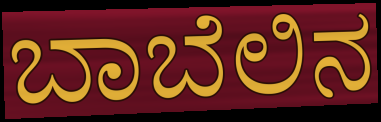
ಬಾಬೆಲಿನ